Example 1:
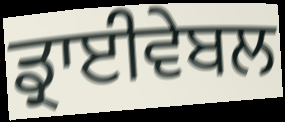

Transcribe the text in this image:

ਡ੍ਰਾਈਵੇਬਲ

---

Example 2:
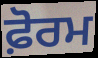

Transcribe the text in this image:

ਫ਼ੋਰਮ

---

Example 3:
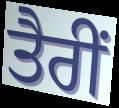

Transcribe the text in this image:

ਤੈਰੀਂ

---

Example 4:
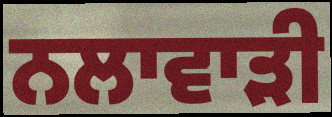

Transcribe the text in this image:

ਨਲਾਵਾੜੀ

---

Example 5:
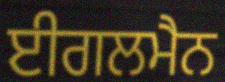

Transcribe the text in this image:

ਈਗਲਮੈਨ